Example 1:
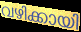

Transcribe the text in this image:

വഴിക്കായി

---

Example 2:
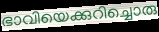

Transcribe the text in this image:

ഭാവിയെക്കുറിച്ചൊരു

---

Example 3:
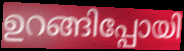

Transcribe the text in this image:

ഉറങ്ങിപ്പോയി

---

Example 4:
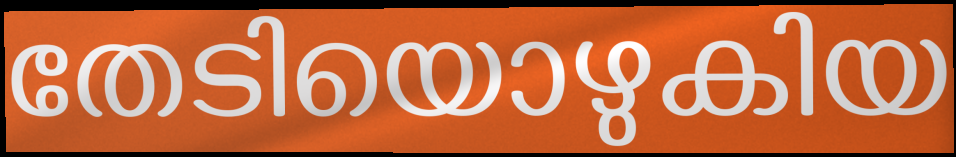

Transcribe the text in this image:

തേടിയൊഴുകിയ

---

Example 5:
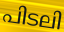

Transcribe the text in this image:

പിടലി